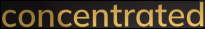
concentrated